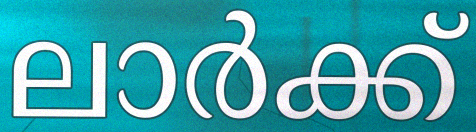
ലാർക്ക്